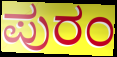
ಪುರಂ